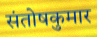
संतोषकुमार